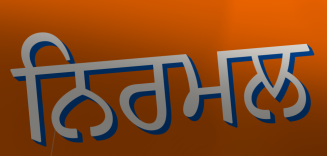
ਨਿਰਮਲ